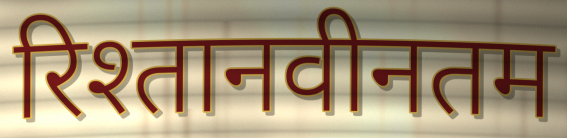
रिश्तानवीनतम